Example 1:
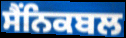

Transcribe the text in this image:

ਸੈੰਨਿਕਬਲ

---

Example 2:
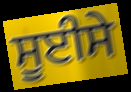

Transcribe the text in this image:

ਸੂਈਸੇ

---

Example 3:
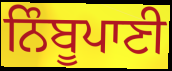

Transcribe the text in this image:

ਨਿੰਬੂਪਾਣੀ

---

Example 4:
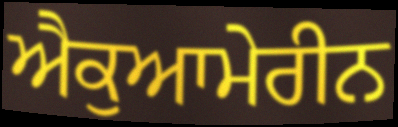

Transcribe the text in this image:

ਐਕੁਆਮੇਰੀਨ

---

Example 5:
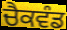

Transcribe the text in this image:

ਚੈਕਵੰਡ